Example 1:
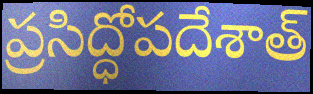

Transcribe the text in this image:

ప్రసిద్ధోపదేశాత్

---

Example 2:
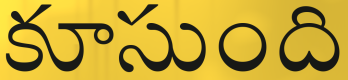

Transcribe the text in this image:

కూసుంది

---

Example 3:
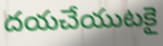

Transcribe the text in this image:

దయచేయుటకై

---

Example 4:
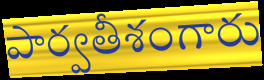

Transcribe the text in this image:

పార్వతీశంగారు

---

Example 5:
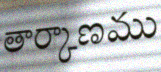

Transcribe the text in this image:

తార్కాణము